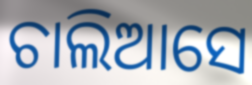
ଚାଲିଆସେ